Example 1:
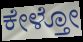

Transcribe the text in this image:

ಕೇಳ್ತೋ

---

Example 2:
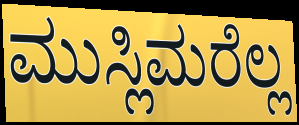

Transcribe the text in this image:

ಮುಸ್ಲಿಮರೆಲ್ಲ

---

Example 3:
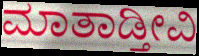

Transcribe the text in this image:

ಮಾತಾಡ್ತೀವಿ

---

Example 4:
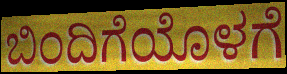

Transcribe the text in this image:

ಬಿಂದಿಗೆಯೊಳಗೆ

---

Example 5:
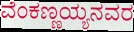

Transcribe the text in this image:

ವೆಂಕಣ್ಣಯ್ಯನವರ